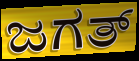
ಜಗತ್